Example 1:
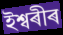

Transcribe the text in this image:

ইশ্বৰীৰ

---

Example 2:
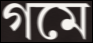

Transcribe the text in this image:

গমে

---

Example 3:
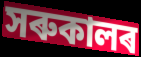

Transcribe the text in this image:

সৰুকালৰ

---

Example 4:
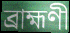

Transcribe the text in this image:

ব্ৰাহ্মণী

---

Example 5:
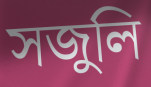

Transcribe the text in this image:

সজুলি